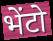
भेंटो